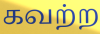
கவற்ற